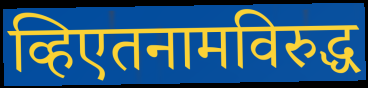
व्हिएतनामविरुद्ध